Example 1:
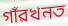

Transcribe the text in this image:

গাঁৱখনত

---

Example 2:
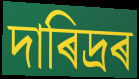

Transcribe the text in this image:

দাৰিদ্ৰৰ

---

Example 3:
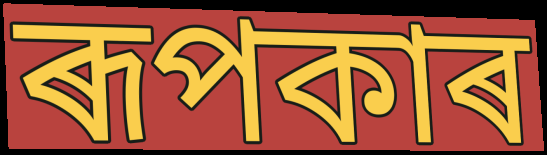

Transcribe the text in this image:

ৰূপকাৰ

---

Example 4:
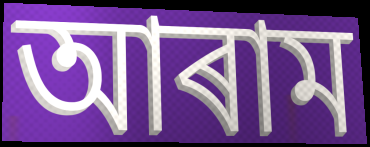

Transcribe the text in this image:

আৰাম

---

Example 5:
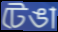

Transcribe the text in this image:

টেঙা